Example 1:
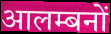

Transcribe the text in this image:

आलम्बनों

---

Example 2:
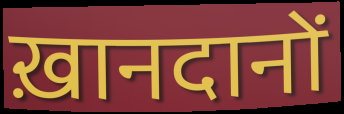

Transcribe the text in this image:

ख़ानदानों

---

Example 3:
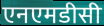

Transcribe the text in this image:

एनएमडीसी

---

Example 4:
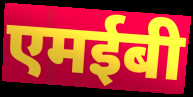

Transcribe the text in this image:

एमईबी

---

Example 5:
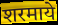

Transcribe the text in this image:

शरमाये